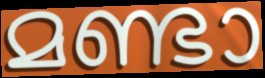
മണ്ടാ